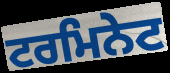
ਟਰਮਿਨੇਟ